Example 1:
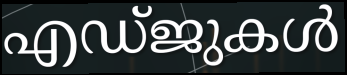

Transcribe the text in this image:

എഡ്ജുകൾ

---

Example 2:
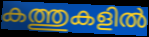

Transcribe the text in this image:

കത്തുകളിൽ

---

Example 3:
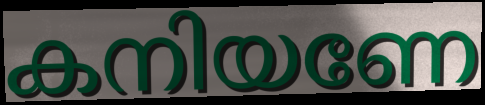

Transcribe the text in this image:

കനിയണേ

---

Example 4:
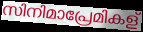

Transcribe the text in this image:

സിനിമാപ്രേമികള്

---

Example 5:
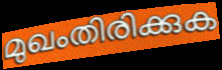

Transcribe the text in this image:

മുഖംതിരിക്കുക